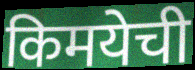
किमयेची